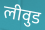
लीवुड